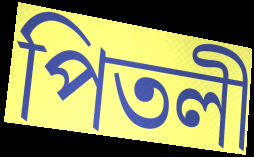
পিতলী